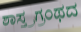
ಶಾಸ್ತ್ರಗ್ರಂಥದ